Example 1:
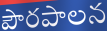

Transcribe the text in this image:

పౌరపాలన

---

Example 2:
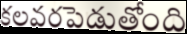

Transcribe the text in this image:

కలవరపెడుతోంది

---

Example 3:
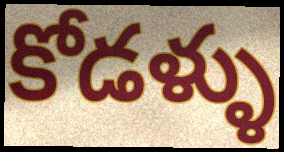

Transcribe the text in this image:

కోడళ్ళు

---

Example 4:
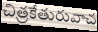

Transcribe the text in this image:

చిత్రకేతురువాచ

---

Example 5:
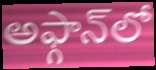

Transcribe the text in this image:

అఫ్గాన్‌లో